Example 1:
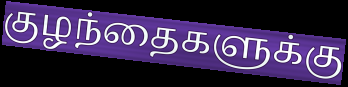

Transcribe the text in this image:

குழந்தைகளுக்கு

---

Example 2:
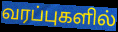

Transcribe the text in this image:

வரப்புகளில்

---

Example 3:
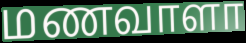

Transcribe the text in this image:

மணவாளா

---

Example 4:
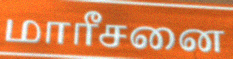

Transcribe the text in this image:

மாரீசனை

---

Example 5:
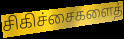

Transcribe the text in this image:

சிகிச்சைகளைத்